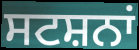
ਸਟਸ਼ਨਾਂ